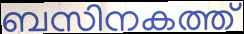
ബസിനകത്ത്